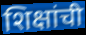
शिक्षांची